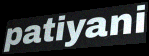
patiyani